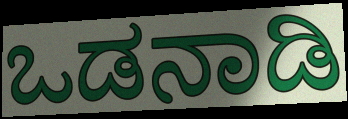
ಒಡನಾಡಿ